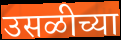
उसळीच्या